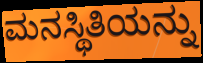
ಮನಸ್ಥಿತಿಯನ್ನು